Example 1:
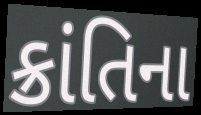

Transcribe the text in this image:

ક્રાંતિના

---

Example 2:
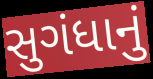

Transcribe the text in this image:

સુગંધાનું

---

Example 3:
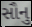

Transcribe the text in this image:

સૌનુ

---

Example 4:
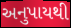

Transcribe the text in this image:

અનુપાયથી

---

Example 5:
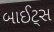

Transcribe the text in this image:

બાઈટ્સ